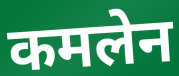
कमलेन